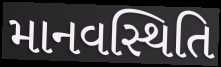
માનવસ્થિતિ